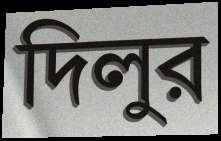
দিলুর